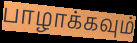
பாழாக்கவும்